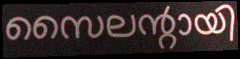
സൈലന്റായി